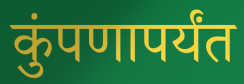
कुंपणापर्यंत